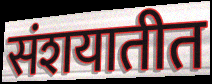
संशयातीत